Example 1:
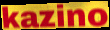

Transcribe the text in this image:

kazino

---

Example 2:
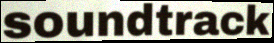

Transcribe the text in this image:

soundtrack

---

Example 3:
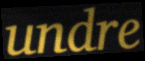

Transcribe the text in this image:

undre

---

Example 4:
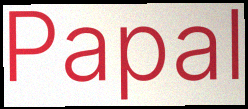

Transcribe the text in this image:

Papal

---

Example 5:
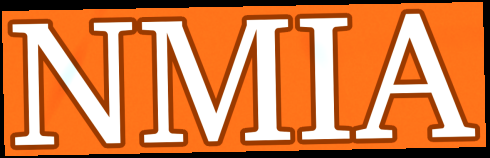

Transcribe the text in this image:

NMIA